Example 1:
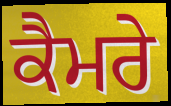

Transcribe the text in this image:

ਕੈਮਰੇ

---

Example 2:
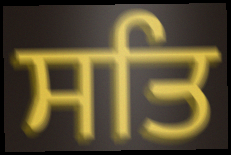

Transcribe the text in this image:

ਸਤਿ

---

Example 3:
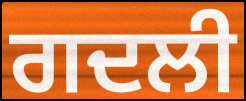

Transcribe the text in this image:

ਗਦਲੀ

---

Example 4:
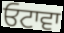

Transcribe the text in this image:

ਓਟਾਵਾ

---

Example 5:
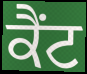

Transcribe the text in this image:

ਕੈਂਟ